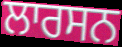
ਲਾਰਸਨ